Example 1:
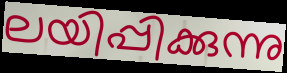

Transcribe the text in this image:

ലയിപ്പിക്കുന്നു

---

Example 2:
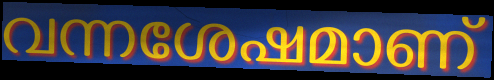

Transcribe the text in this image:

വന്നശേഷമാണ്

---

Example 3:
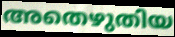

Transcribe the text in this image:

അതെഴുതിയ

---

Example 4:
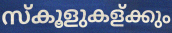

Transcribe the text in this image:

സ്കൂളുകള്ക്കും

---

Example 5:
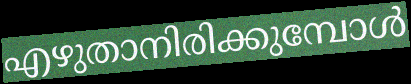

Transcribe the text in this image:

എഴുതാനിരിക്കുമ്പോൾ